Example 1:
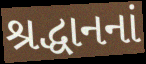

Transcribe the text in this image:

શ્રદ્ધાનનાં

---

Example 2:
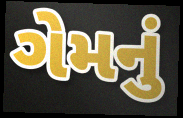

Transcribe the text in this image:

ગેમનું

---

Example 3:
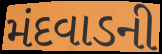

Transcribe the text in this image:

મંદવાડની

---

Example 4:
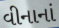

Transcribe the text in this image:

વીનાનાં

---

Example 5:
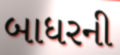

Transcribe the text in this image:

બાધરની